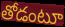
తోడంటూ